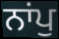
ਨਾਂਪੁ